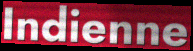
Indienne